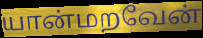
யான்மறவேன்